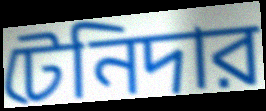
টেনিদার